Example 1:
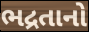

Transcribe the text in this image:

ભદ્રતાનો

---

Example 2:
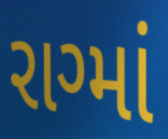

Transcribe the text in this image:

રાગ્માં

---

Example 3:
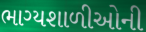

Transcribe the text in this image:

ભાગ્યશાળીઓની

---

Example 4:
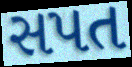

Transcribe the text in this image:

સપત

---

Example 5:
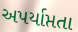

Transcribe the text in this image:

અપર્યાપ્તતા